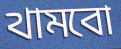
থামবো